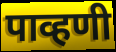
पाव्हणी